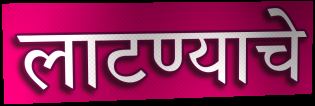
लाटण्याचे